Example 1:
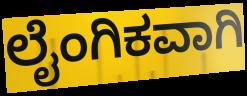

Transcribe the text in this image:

ಲೈಂಗಿಕವಾಗಿ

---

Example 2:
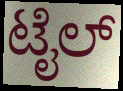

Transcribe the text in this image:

ಟೈಲ್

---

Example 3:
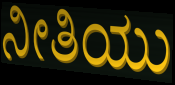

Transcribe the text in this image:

ನೀತಿಯು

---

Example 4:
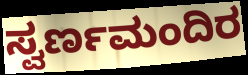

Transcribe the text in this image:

ಸ್ವರ್ಣಮಂದಿರ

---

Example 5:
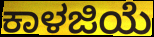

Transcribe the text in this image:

ಕಾಳಜಿಯೆ